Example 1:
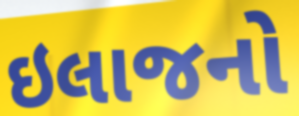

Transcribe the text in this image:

ઇલાજનો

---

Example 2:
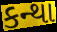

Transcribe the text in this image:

કન્થા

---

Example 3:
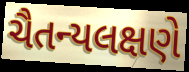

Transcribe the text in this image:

ચૈતન્યલક્ષણે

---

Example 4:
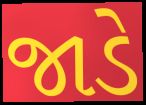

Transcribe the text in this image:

જાડે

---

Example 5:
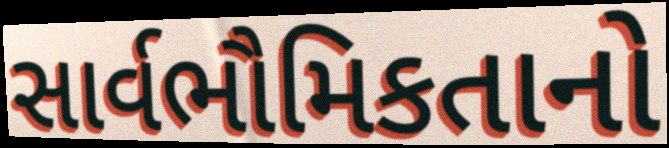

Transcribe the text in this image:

સાર્વભૌમિકતાનો